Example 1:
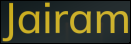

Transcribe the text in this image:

Jairam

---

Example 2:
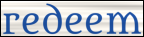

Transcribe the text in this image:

redeem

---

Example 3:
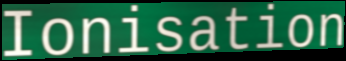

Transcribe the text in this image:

Ionisation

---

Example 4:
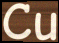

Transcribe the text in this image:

Cu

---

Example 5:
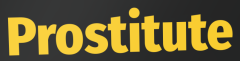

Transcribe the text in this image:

Prostitute